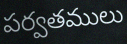
పర్వతములు